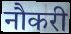
नौकरी